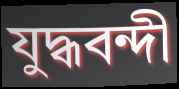
যুদ্ধবন্দী